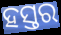
ହସ୍ତର